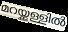
മറയ്ക്കുള്ളിൽ